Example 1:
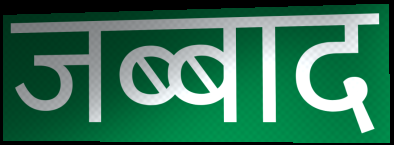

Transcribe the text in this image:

जब्बाद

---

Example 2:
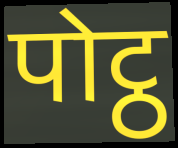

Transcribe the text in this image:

पोट्ठ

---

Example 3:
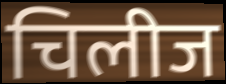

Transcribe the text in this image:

चिलीज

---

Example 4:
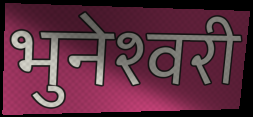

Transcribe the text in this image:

भुनेश्वरी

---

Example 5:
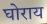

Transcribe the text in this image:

घोराय